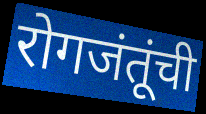
रोगजंतूंची